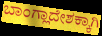
ಬಾಂಗ್ಲಾದೇಶಕ್ಕಾಗಿ